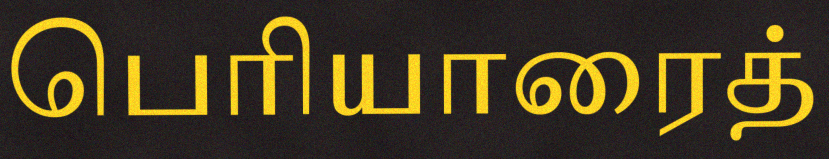
பெரியாரைத்